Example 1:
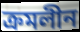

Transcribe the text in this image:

ক্রমলীন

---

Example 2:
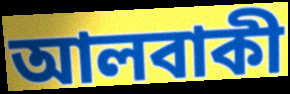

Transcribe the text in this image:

আলবাকী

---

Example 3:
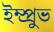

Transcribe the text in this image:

ইম্প্রুভ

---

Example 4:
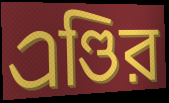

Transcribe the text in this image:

এণ্ডির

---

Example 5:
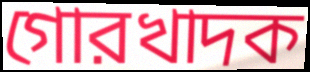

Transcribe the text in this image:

গোরখাদক